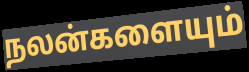
நலன்களையும்